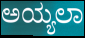
ಅಯ್ಯಲಾ